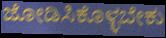
ಜೋಡಿಸಿಕೊಳ್ಳಬೇಕು